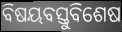
ବିଷୟବସ୍ତୁବିଶେଷ